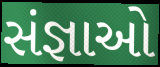
સંજ્ઞાઓ